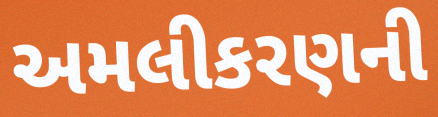
અમલીકરણની